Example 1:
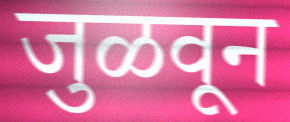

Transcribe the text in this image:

जुळवून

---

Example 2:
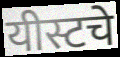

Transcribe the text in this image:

यीस्टचे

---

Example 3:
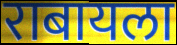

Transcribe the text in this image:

राबायला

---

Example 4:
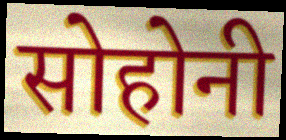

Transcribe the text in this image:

सोहोनी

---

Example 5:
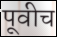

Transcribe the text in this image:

पूवीच